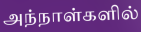
அந்நாள்களில்